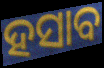
ହସାବ